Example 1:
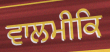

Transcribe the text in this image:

ਵਾਲਮੀਕਿ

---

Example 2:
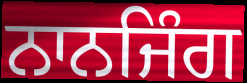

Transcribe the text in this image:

ਨਾਨਜਿੰਗ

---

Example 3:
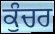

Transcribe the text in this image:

ਕੁੰਚਰ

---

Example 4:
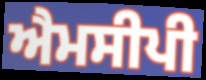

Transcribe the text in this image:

ਐਮਸੀਪੀ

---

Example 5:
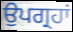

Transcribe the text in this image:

ਉਪਗ੍ਰਹਾਂ